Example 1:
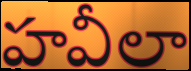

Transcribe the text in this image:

హవీలా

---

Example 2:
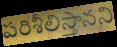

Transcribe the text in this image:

పరిశీలిస్తానని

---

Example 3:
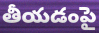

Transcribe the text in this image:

తీయడంపై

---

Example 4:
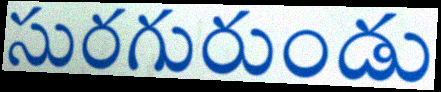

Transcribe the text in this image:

సురగురుండు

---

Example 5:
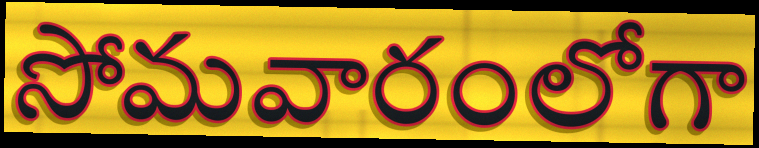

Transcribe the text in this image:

సోమవారంలోగా